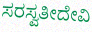
ಸರಸ್ವತೀದೇವಿ